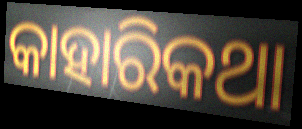
କାହାରିକଥା